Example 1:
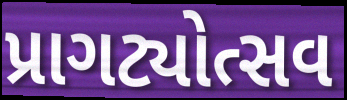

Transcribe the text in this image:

પ્રાગટ્યોત્સવ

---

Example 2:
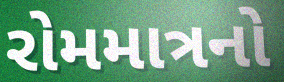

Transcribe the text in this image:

રોમમાત્રનો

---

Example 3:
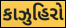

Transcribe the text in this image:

કાઝુહિરો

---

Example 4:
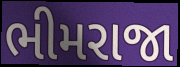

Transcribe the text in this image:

ભીમરાજા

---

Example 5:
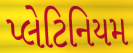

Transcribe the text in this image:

પ્લેટિનિયમ